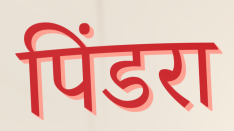
पिंडरा